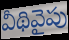
వీథివైపు